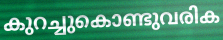
കുറച്ചുകൊണ്ടുവരിക